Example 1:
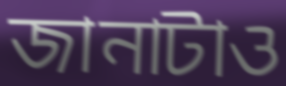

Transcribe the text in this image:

জানাটাও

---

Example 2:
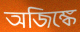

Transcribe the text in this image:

অজিঙ্কে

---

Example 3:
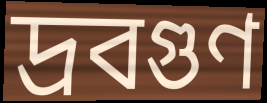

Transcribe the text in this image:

দ্রবগুণ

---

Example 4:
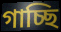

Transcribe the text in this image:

গাচ্ছি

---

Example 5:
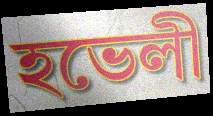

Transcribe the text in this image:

হভেলী